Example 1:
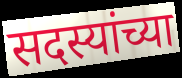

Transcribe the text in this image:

सदस्यांच्या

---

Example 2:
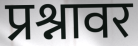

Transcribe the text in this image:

प्रश्नावर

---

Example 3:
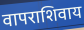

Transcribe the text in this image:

वापराशिवाय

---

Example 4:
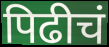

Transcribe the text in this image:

पिढीचं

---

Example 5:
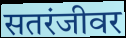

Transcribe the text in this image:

सतरंजीवर